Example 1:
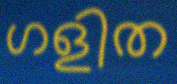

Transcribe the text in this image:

ഗളിത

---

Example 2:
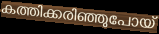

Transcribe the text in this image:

കത്തിക്കരിഞ്ഞുപോയ്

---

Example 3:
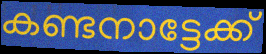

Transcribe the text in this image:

കണ്ടനാട്ടേക്ക്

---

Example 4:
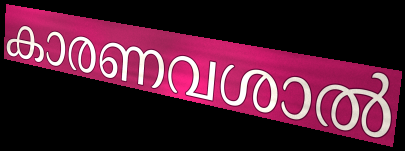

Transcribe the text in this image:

കാരണവശാൽ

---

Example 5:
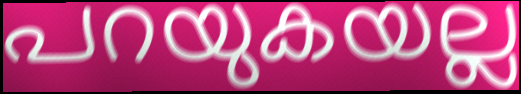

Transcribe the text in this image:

പറയുകയല്ല